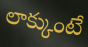
లాక్కుంటే